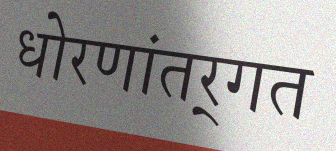
धोरणांतर्गत